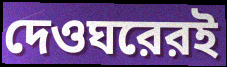
দেওঘরেরই